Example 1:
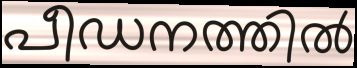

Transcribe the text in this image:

പീഡനത്തിൽ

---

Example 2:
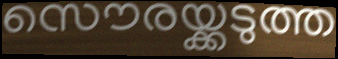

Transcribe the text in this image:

സൌരയ്ക്കടുത്ത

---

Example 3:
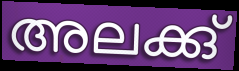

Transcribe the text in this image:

അലക്കു്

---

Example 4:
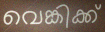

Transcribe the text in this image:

വെങ്കിക്ക്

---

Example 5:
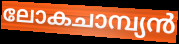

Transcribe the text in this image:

ലോകചാമ്പ്യൻ